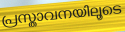
പ്രസ്താവനയിലൂടെ